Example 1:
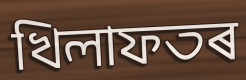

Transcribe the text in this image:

খিলাফতৰ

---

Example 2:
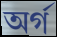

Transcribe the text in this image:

অৰ্গ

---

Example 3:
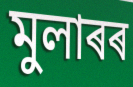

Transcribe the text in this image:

মুলাৰৰ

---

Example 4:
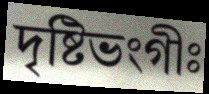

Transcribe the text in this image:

দৃষ্টিভংগীঃ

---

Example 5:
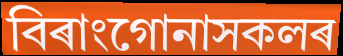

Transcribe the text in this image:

বিৰাংগোনাসকলৰ